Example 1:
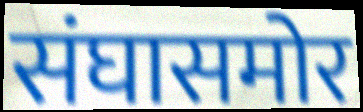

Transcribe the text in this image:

संघासमोर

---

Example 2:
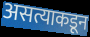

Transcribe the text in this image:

असत्याकडून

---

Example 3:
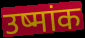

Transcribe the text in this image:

उष्मांक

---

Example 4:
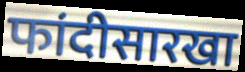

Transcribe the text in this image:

फांदीसारखा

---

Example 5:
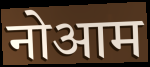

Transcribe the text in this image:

नोआम